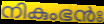
നികുംഭൻഃ